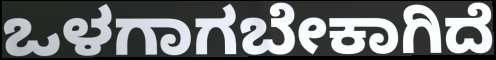
ಒಳಗಾಗಬೇಕಾಗಿದೆ